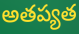
అతప్యత